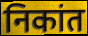
निकांत